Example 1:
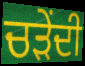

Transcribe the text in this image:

ਚੜੇਂਦੀ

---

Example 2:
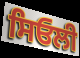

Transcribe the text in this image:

ਸਿਓਲੀ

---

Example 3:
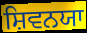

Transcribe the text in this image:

ਸ਼ਿਵਨਯਾ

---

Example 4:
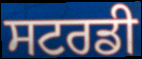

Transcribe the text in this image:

ਸਟਰਡੀ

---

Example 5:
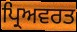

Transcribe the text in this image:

ਪ੍ਰਿਅਵਰਤ